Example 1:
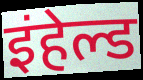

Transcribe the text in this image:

इंहेल्ड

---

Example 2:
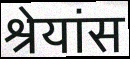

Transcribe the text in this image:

श्रेयांस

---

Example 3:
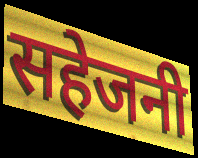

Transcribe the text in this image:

सहेजनी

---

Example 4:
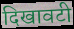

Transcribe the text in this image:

दिखावटी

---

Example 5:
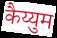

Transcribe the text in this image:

कैय्युम